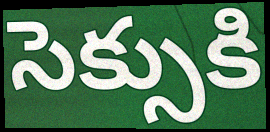
సెక్సుకి